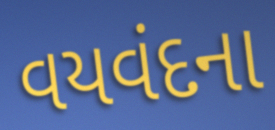
વયવંદના